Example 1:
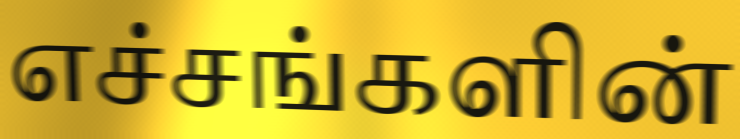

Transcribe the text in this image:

எச்சங்களின்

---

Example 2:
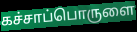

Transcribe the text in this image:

கச்சாப்பொருளை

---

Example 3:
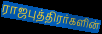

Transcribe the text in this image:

ராஜபுத்திரர்களின்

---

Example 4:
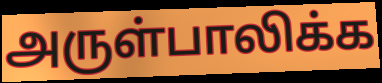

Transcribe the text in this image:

அருள்பாலிக்க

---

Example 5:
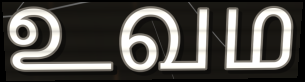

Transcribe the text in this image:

உவம